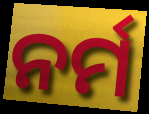
ନର୍ମ